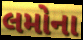
લમોના